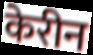
केरीन